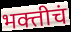
भक्तीचं